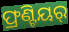
ଫ୍ରଣ୍ଟିୟର୍